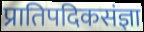
प्रातिपदिकसंज्ञा